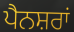
ਪੈਨਸ਼ਰਾਂ